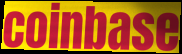
coinbase